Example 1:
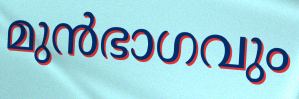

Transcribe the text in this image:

മുൻഭാഗവും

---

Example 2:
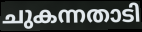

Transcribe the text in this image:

ചുകന്നതാടി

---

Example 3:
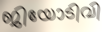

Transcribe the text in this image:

ജിയോടിവി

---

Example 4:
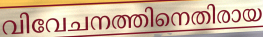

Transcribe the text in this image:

വിവേചനത്തിനെതിരായ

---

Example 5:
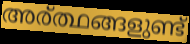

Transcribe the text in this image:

അര്ത്ഥങ്ങളുണ്ട്